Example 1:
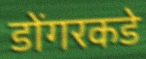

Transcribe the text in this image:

डोंगरकडे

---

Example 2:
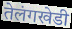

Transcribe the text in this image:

तेलंगखेडी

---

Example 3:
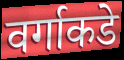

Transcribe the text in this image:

वर्गाकडे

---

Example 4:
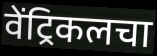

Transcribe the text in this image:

वेंट्रिकलचा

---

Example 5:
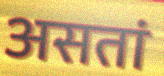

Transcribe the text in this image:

असतां